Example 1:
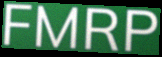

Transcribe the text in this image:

FMRP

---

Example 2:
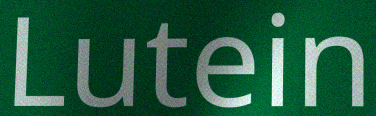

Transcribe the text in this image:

Lutein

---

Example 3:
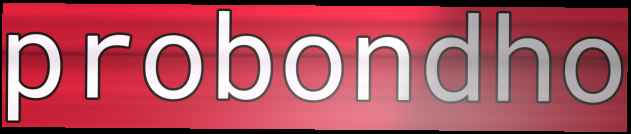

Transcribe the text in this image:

probondho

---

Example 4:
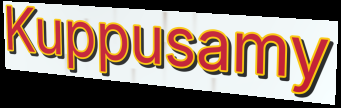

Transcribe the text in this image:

Kuppusamy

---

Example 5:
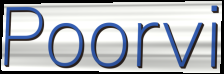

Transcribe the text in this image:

Poorvi